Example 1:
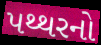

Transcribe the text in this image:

પથ્થરનો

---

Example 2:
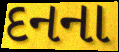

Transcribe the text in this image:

દનના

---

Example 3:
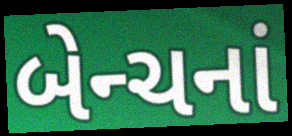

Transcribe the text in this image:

બેન્ચનાં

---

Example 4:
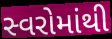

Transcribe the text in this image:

સ્વરોમાંથી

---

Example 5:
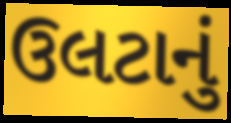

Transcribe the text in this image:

ઉલટાનું